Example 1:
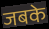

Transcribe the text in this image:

जबके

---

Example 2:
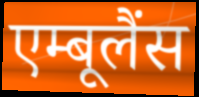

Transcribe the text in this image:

एम्बूलैंस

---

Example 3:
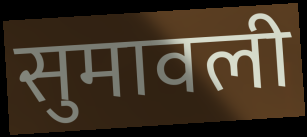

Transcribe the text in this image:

सुमावली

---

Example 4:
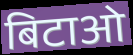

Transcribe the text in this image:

बिटाओ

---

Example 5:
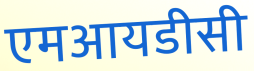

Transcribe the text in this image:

एमआयडीसी